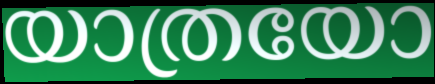
യാത്രയോ